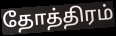
தோத்திரம்